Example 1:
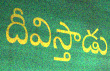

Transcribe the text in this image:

దీవిస్తాడు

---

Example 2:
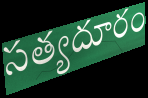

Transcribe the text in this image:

సత్యదూరం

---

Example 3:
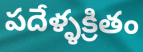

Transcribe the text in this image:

పదేళ్ళక్రితం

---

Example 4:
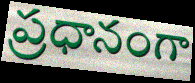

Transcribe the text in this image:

ప్రధానంగా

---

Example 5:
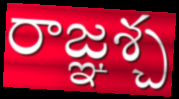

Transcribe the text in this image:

రాజ్ఞశ్చ